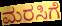
ಮರಸಿಗೆ